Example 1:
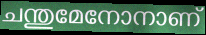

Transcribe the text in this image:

ചന്തുമേനോനാണ്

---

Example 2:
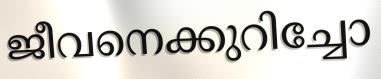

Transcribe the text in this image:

ജീവനെക്കുറിച്ചോ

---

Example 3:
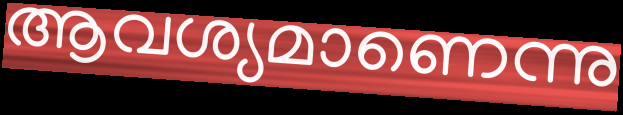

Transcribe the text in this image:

ആവശ്യമാണെന്നു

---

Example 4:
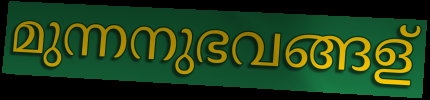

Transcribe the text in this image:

മുന്നനുഭവങ്ങള്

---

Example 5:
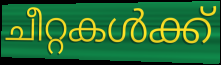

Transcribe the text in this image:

ചീറ്റകൾക്ക്